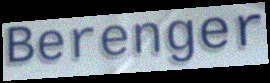
Berenger